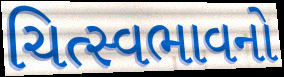
ચિત્સ્વભાવનો